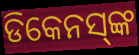
ଡିକେନସ୍‌ଙ୍କ